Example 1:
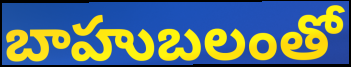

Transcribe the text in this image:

బాహుబలంతో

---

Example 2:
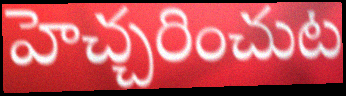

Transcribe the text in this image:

హెచ్చరించుట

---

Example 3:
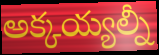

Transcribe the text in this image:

అక్కయ్యల్నీ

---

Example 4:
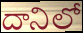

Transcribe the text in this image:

దానిలో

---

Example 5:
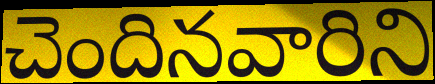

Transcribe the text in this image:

చెందినవారిని